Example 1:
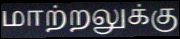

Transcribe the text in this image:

மாற்றலுக்கு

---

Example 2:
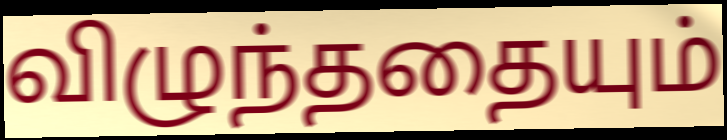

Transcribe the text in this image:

விழுந்ததையும்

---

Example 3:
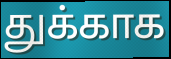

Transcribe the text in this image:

துக்காக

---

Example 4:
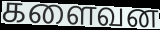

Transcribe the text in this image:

களைவன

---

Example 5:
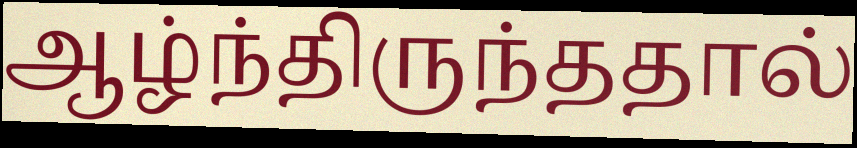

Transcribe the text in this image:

ஆழ்ந்திருந்ததால்